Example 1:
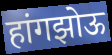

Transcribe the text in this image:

हांगझोऊ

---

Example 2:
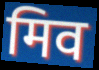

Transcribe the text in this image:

मिव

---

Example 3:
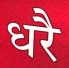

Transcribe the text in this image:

धरै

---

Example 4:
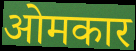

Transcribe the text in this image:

ओमकार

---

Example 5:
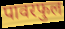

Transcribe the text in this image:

पावरफुल